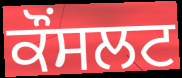
ਕੌਂਸਲਟ